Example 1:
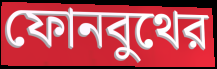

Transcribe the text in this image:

ফোনবুথের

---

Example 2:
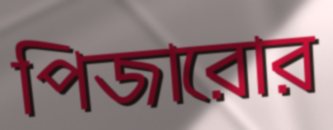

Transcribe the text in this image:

পিজারোর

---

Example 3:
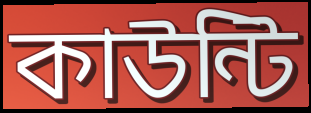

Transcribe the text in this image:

কাউন্টি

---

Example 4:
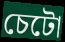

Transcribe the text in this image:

চেটো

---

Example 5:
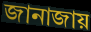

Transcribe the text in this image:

জানাজায়